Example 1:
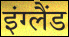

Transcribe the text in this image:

इंग्‍लैंड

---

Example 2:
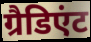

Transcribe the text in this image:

ग्रैडिएंट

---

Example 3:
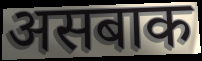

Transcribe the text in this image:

असबाक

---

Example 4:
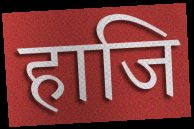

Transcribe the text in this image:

हाजि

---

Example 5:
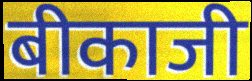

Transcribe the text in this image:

बीकाजी